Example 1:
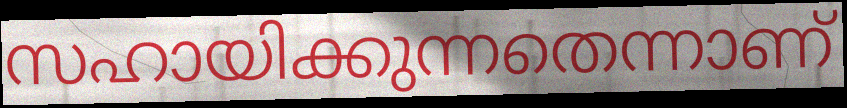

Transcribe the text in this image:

സഹായിക്കുന്നതെന്നാണ്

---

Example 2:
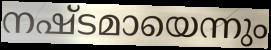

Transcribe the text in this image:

നഷ്ടമായെന്നും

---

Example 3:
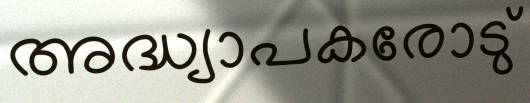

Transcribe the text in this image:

അദ്ധ്യാപകരോടു്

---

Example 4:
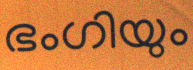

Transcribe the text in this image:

ഭംഗിയും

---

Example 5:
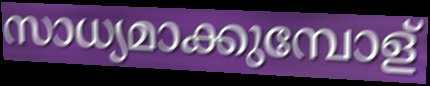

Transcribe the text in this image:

സാധ്യമാക്കുമ്പോള്